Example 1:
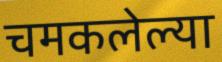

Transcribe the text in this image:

चमकलेल्या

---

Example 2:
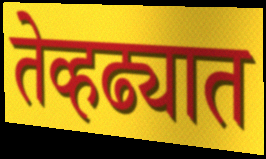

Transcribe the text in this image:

तेव्हढ्यात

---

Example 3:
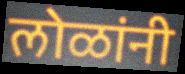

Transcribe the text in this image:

लोळांनी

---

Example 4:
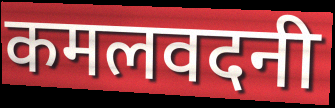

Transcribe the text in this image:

कमलवदनी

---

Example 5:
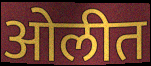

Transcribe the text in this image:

ओलीत